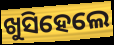
ଖୁସିହେଲେ